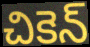
చికెన్